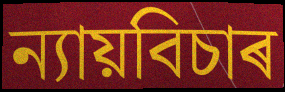
ন্যায়বিচাৰ